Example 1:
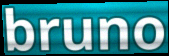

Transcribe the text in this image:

bruno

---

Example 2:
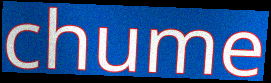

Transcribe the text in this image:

chume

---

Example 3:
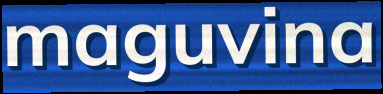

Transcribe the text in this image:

maguvina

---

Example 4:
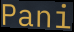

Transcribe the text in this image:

Pani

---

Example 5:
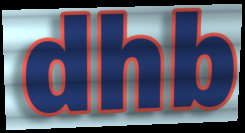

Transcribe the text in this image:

dhb